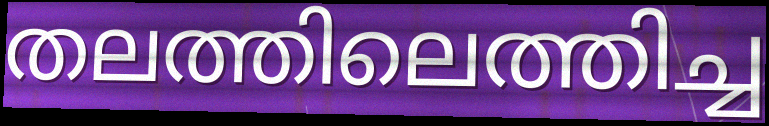
തലത്തിലെത്തിച്ച